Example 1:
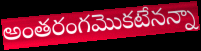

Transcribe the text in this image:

అంతరంగమొకటేనన్నా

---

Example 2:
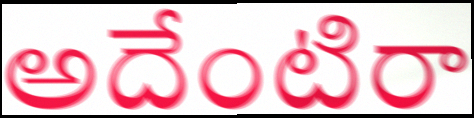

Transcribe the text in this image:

అదేంటిరా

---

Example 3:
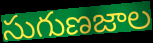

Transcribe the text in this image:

సుగుణజాల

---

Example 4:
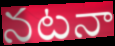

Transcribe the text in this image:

నటనా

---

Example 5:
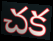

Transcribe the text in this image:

చక